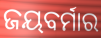
ଜୟବର୍ମାର